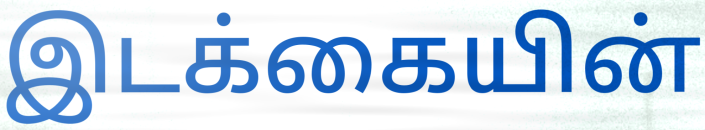
இடக்கையின்